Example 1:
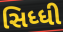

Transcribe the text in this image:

સિધ્ધી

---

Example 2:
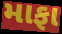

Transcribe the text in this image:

માફા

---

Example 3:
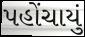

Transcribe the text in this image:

પહોંચાયું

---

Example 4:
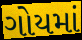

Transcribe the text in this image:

ગોયમાં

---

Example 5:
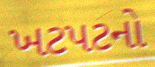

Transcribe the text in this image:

ખટપટનો